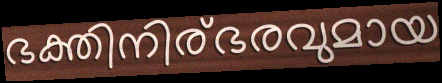
ഭക്തിനിര്ഭരവുമായ